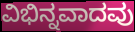
ವಿಭಿನ್ನವಾದವು